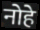
नोहे